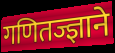
गणितज्ज्ञाने